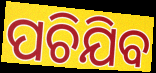
ପଚିଯିବ